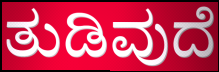
ತುಡಿವುದೆ